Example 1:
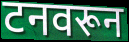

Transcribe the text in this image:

टनवरून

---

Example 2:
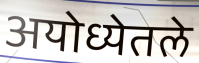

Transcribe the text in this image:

अयोध्येतले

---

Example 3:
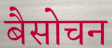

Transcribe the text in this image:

बैसोचन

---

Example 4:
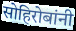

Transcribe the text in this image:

सोहिरोबांनी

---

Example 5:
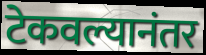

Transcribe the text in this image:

टेकवल्यानंतर